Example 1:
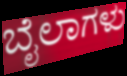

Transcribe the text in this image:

ಬೈಲಾಗಳು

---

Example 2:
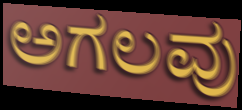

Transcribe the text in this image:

ಅಗಲವು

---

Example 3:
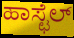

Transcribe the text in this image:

ಹಾಸ್ಟೆಲ್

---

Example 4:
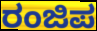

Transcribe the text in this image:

ರಂಜಿಪ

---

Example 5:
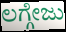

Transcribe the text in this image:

ಲಗ್ಗೇಜು